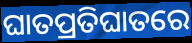
ଘାତପ୍ରତିଘାତରେ